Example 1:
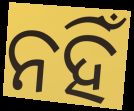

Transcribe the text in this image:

ନହିଁ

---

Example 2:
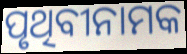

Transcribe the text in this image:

ପୃଥିବୀନାମକ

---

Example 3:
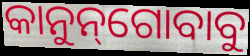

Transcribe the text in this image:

କାନୁନ୍‌ଗୋବାବୁ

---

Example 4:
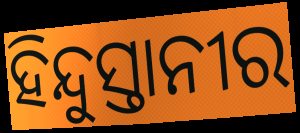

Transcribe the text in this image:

ହିନ୍ଦୁସ୍ତାନୀର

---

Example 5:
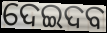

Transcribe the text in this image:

ଦେଇଦବ